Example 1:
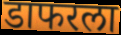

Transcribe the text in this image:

डाफरला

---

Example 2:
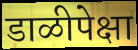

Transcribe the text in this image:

डाळीपेक्षा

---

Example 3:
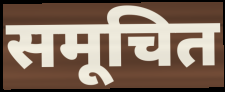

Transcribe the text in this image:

समूचित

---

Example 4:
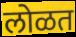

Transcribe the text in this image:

लोळत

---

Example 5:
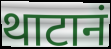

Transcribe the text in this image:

थाटानं